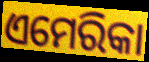
ଏମେରିକା